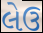
લેઉ